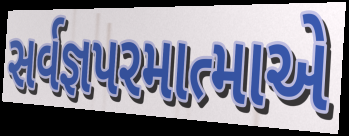
સર્વજ્ઞપરમાત્માએ